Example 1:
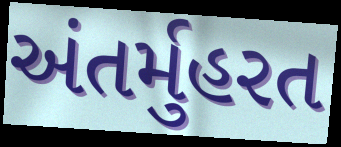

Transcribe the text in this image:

અંતર્મુહરત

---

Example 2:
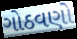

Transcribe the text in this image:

ગોઠવણો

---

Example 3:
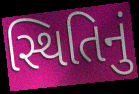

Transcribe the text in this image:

સ્થિતિનું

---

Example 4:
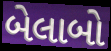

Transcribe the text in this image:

બેલાબો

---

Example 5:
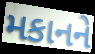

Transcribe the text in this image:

મકાનને